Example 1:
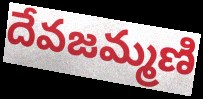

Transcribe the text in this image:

దేవజమ్మణి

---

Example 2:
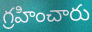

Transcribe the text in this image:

గ్రహించారు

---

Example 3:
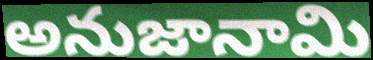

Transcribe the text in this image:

అనుజానామి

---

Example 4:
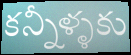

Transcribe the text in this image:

కన్నీళ్ళకు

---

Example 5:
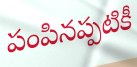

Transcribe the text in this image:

పంపినప్పటికీ